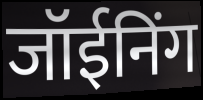
जॉईनिंग